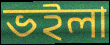
ভইলা